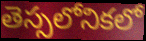
తెస్సలోనికలో